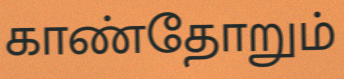
காண்தோறும்